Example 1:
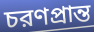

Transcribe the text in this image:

চরণপ্রান্ত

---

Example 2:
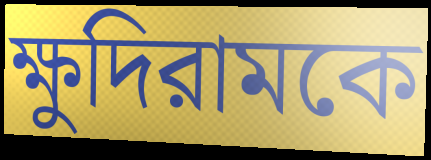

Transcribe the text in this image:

ক্ষুদিরামকে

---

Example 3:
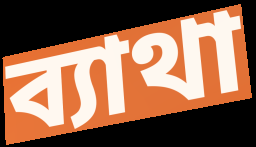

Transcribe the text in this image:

ব্যাথা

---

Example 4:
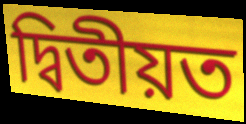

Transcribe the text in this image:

দ্বিতীয়ত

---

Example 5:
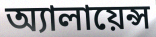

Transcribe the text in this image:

অ্যালায়েন্স